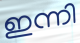
ഇന്നി